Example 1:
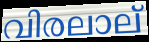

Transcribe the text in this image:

വിരലാല്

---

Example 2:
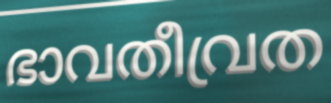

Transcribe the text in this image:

ഭാവതീവ്രത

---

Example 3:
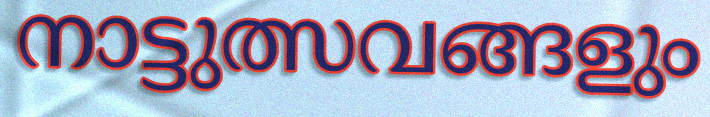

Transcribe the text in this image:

നാട്ടുത്സവങ്ങളും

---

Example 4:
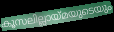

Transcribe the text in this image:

കൂസലില്ലായ്മയുടെയും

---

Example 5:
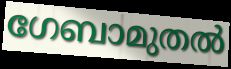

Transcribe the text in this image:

ഗേബാമുതൽ